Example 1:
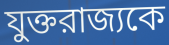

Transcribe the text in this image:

যুক্তরাজ্যকে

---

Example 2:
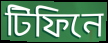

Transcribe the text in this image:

টিফিনে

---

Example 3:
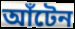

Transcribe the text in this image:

আঁটেন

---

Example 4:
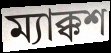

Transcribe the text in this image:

ম্যাক্কশ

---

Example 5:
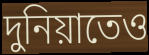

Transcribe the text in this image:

দুনিয়াতেও